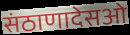
संठाणादेसओ